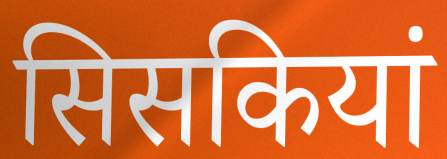
सिसकियां